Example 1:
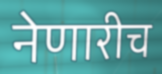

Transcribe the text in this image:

नेणारीच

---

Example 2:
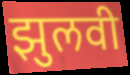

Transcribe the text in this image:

झुलवी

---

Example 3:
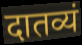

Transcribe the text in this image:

दातव्यं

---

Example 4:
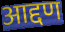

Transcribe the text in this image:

आद्दण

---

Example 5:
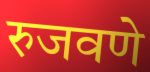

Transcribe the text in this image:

रुजवणे